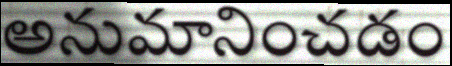
అనుమానించడం